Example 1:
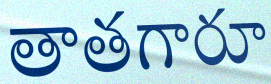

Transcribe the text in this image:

తాతగారూ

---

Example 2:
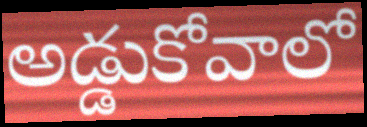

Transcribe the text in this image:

అడ్డుకోవాలో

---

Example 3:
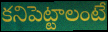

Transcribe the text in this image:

కనిపెట్టాలంటే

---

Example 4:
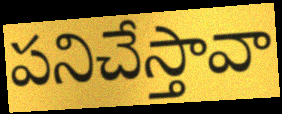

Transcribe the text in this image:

పనిచేస్తావా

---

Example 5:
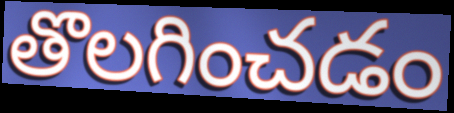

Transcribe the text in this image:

తొలగించడం